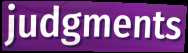
judgments